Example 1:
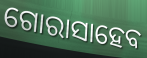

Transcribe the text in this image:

ଗୋରାସାହେବ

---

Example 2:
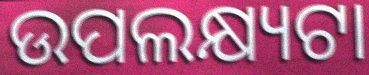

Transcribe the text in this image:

ଉପଲକ୍ଷ୍ୟଟା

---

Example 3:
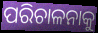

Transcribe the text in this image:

ପରିଚାଳନାକୁ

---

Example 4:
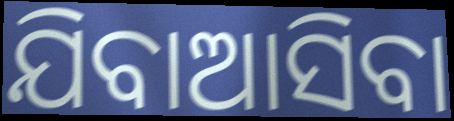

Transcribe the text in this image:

ଯିବାଆସିବା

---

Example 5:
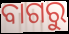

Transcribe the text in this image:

ବାଗରୁ